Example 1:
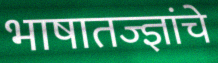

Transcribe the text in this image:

भाषातज्ज्ञांचे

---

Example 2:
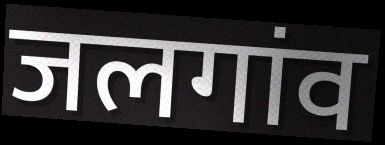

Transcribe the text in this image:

जलगांव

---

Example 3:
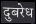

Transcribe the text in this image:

दुबरेध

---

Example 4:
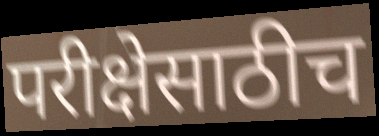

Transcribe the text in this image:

परीक्षेसाठीच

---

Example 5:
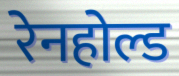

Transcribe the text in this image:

रेनहोल्ड